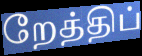
றேத்திப்